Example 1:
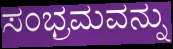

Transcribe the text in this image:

ಸಂಭ್ರಮವನ್ನು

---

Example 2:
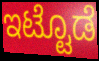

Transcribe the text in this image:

ಇಟ್ಟೊಡೆ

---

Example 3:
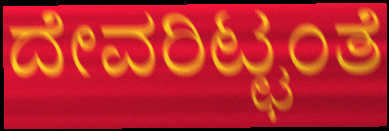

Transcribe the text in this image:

ದೇವರಿಟ್ಟಂತೆ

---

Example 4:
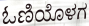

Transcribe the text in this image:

ಓಣಿಯೊಳಗ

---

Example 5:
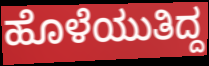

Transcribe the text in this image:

ಹೊಳೆಯುತಿದ್ದ